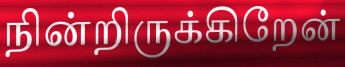
நின்றிருக்கிறேன்